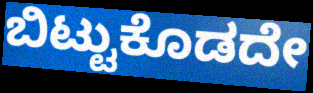
ಬಿಟ್ಟುಕೊಡದೇ